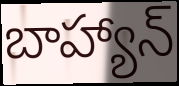
బాహ్యాన్